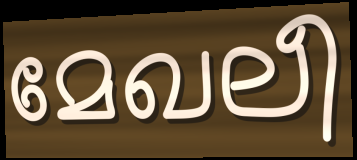
മേഖലീ